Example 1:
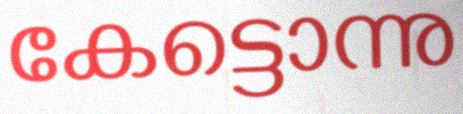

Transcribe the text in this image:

കേട്ടൊന്നു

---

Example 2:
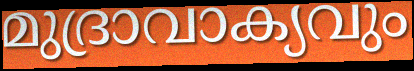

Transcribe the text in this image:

മുദ്രാവാക്യവും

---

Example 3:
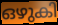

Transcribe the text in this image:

ഒഴുകി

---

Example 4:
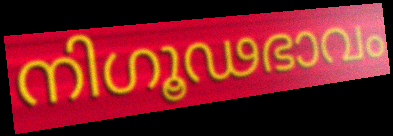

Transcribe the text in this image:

നിഗൂഢഭാവം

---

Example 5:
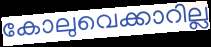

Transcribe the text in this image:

കോലുവെക്കാറില്ല